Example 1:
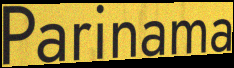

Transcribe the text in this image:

Parinama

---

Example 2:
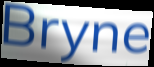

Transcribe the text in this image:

Bryne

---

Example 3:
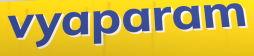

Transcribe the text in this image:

vyaparam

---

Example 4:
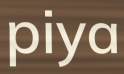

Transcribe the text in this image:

piya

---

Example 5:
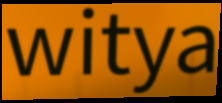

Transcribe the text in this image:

witya